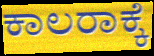
ಕಾಲರಾಕ್ಕೆ